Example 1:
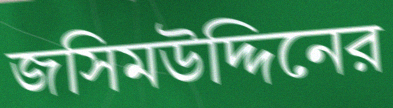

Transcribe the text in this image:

জসিমউদ্দিনের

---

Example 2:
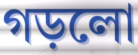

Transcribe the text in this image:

গড়লো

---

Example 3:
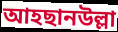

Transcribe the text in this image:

আহছানউল্লা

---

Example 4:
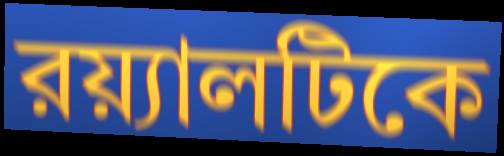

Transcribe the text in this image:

রয়্যালটিকে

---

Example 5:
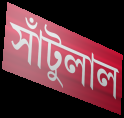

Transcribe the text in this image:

সাঁটুলাল